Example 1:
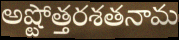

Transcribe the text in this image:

అష్టోత్తరశతనామ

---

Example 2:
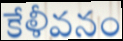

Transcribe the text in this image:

కేళీవనం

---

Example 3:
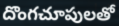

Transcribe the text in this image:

దొంగచూపులతో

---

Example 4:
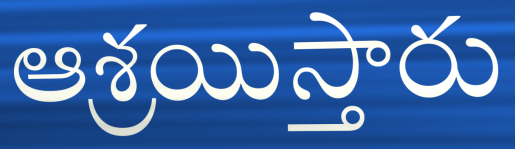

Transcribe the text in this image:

ఆశ్రయిస్తారు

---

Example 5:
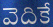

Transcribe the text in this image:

వెదికే